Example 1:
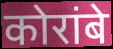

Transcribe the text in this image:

कोरांबे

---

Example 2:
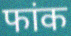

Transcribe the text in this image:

फांक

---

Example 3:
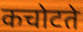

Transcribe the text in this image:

कचोटते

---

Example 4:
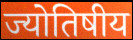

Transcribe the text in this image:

ज्योतिषीय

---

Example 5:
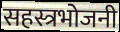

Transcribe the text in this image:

सहस्त्रभोजनी